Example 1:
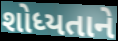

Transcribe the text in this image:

શોધ્યતાને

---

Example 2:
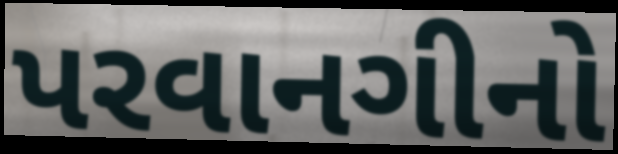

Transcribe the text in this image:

પરવાનગીનો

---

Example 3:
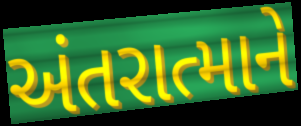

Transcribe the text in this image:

અંતરાત્માને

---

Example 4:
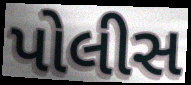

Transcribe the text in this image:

પોલીસ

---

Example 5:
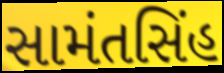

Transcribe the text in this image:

સામંતસિંહ